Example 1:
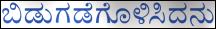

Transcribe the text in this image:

ಬಿಡುಗಡೆಗೊಳಿಸಿದನು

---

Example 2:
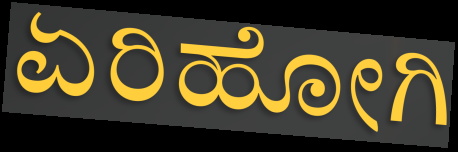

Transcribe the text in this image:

ಏರಿಹೋಗಿ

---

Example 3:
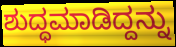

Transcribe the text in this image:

ಶುದ್ಧಮಾಡಿದ್ದನ್ನು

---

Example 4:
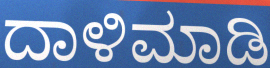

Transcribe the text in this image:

ದಾಳಿಮಾಡಿ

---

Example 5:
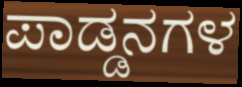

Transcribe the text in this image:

ಪಾಡ್ಡನಗಳ